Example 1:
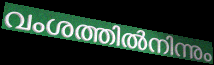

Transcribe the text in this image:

വംശത്തിൽനിന്നും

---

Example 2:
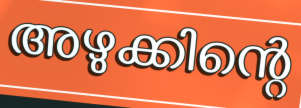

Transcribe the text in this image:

അഴുക്കിന്റെ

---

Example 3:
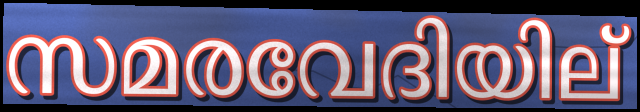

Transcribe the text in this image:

സമരവേദിയില്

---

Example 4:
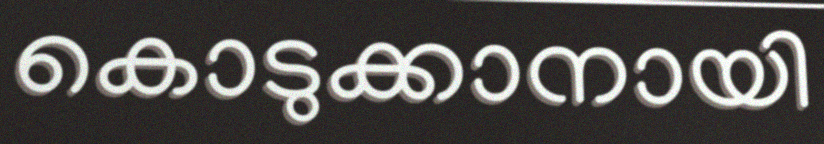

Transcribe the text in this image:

കൊടുക്കാനായി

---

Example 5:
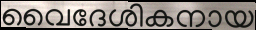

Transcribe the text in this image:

വൈദേശികനായ